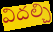
విదల్చి